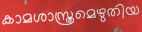
കാമശാസ്ത്രമെഴുതിയ